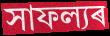
সাফল্যৰ